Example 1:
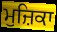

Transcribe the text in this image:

ਮੁਜ਼ਿਕਾ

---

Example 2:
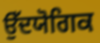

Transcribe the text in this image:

ਉੱਦਯੋਗਿਕ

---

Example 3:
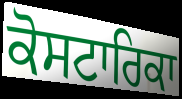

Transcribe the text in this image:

ਕੋਸਟਾਰਿਕਾ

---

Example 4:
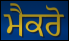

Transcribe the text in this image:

ਮੈਕਰੋ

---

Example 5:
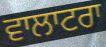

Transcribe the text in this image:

ਵਾਲਾਟਰਾ